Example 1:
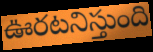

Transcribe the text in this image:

ఊరటనిస్తుంది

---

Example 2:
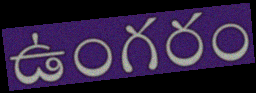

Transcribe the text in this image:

ఉంగరం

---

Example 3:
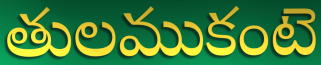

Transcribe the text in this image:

తులముకంటె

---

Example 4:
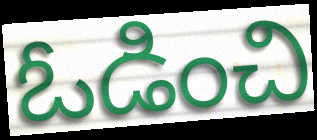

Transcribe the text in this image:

ఓడించి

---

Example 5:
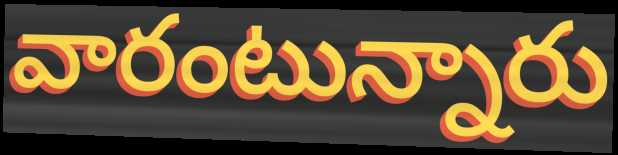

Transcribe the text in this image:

వారంటున్నారు